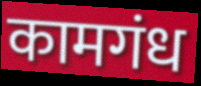
कामगंध